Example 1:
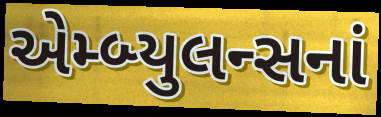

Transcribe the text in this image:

એમ્બ્યુલન્સનાં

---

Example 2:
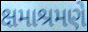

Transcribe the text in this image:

ક્ષમાશ્રમણે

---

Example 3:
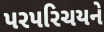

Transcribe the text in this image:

પરપરિચયને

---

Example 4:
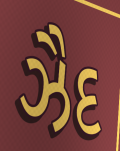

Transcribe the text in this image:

ઝૈદ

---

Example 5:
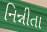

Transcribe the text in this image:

નિન્નીતા